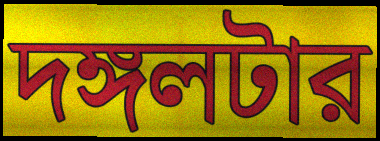
দঙ্গলটার